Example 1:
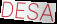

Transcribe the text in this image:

DESA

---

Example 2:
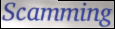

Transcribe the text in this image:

Scamming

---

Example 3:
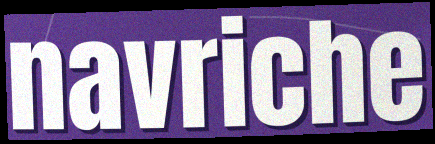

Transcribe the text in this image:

navriche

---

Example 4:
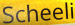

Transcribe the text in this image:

Scheeli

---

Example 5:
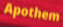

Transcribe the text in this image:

Apothem